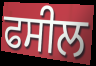
ਫਸੀਲ